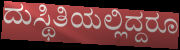
ದುಸ್ಥಿತಿಯಲ್ಲಿದ್ದರೂ